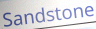
Sandstone